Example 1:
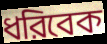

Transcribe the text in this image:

ধরিবেক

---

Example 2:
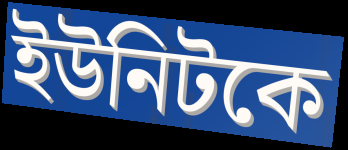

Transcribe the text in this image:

ইউনিটকে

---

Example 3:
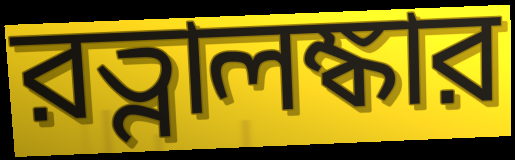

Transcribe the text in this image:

রত্নালঙ্কার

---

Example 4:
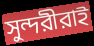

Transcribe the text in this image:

সুন্দরীরাই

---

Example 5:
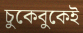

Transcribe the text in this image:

চুকেবুকেই